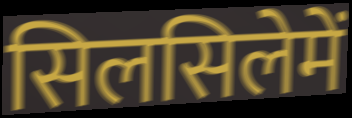
सिलसिलेमें